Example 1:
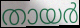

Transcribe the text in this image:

തായർ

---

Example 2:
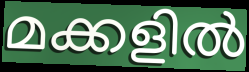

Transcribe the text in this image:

മക്കളിൽ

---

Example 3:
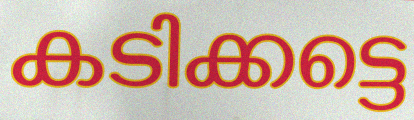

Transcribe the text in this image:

കടിക്കട്ടെ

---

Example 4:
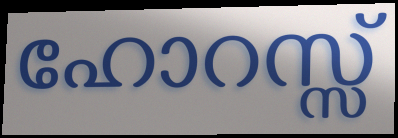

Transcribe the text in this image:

ഹോറസ്സ്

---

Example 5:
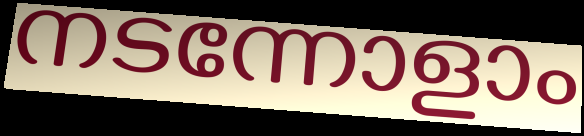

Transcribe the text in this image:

നടന്നോളാം